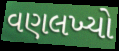
વણલખ્યો